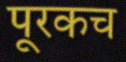
पूरकच